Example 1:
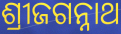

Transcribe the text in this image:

ଶ୍ରୀଜଗନ୍ନାଥ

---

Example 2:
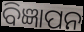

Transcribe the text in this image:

ବିଜ୍ଞାପନ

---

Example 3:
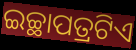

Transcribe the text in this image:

ଇଚ୍ଛାପତ୍ରଟିଏ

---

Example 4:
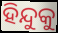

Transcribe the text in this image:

ହିନ୍ଦୁକୁ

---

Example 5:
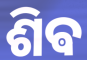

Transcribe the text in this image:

ଶିଵ